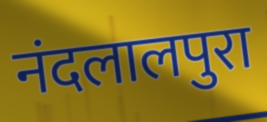
नंदलालपुरा